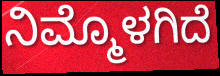
ನಿಮ್ಮೊಳಗಿದೆ